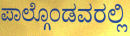
ಪಾಲ್ಗೊಂಡವರಲ್ಲಿ